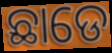
ଛାଡେ